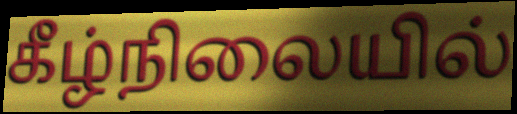
கீழ்நிலையில்